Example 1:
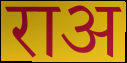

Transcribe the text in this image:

राअ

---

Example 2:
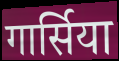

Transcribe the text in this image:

गार्सिया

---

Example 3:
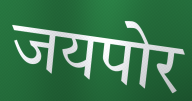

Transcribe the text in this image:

जयपोर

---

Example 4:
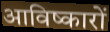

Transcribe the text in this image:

आविष्‍कारों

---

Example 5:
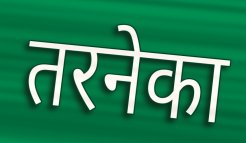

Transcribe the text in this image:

तरनेका